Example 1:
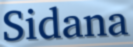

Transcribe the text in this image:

Sidana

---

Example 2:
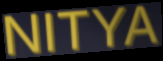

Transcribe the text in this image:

NITYA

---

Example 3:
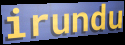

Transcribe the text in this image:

irundu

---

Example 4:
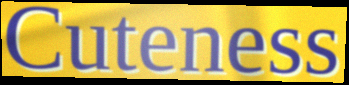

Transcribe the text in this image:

Cuteness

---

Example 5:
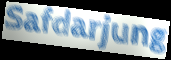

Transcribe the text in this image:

Safdarjung